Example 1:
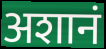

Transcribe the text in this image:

अशानं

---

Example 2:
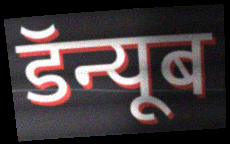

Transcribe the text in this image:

डॅन्यूब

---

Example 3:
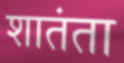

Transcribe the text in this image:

शातंता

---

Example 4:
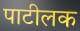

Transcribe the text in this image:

पाटीलक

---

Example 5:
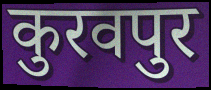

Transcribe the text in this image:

कुरवपुर